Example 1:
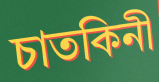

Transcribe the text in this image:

চাতকিনী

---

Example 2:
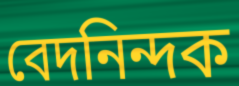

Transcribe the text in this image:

বেদনিন্দক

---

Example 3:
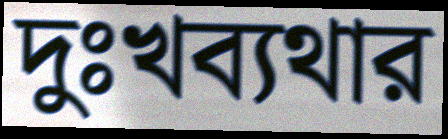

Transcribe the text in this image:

দুঃখব্যথার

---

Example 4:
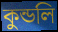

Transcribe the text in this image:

কুন্ডলি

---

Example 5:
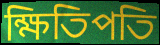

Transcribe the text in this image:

ক্ষিতিপতি